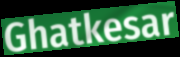
Ghatkesar